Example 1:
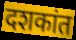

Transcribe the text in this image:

दशकांत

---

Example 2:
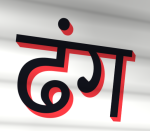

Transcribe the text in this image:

ढंग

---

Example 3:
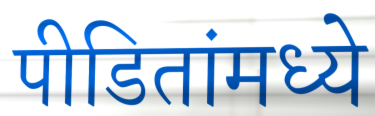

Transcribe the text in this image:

पीडितांमध्ये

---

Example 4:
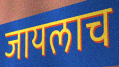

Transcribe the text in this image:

जायलाच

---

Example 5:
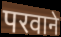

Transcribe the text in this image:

परवाने